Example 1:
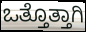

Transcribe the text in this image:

ಒತ್ತೊತ್ತಾಗಿ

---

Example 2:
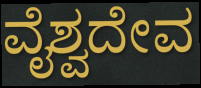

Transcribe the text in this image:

ವೈಶ್ವದೇವ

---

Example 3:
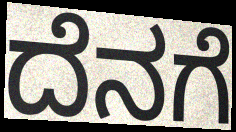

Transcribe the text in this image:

ದೆನಗೆ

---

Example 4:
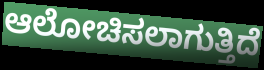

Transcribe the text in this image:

ಆಲೋಚಿಸಲಾಗುತ್ತಿದೆ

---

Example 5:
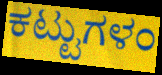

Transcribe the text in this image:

ಕಟ್ಟುಗಳಂ